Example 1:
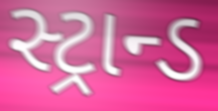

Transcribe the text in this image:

સ્ટ્રાન્ડ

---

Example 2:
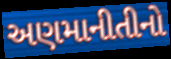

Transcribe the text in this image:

અણમાનીતીનો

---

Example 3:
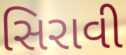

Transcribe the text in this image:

સિરાવી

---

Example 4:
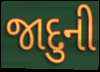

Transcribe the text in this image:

જાદુની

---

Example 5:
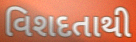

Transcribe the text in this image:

વિશદતાથી